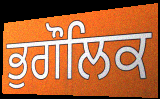
ਭੁਗੌਲਿਕ